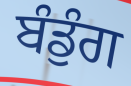
ਬੰਡੁੰਗ